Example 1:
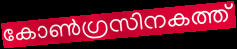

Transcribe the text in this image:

കോൺഗ്രസിനകത്ത്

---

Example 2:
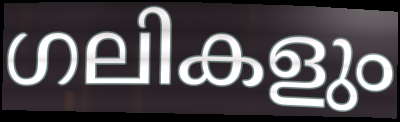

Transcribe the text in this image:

ഗലികളും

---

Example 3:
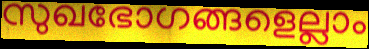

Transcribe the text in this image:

സുഖഭോഗങ്ങളെല്ലാം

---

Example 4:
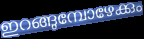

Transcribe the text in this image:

ഇറങ്ങുമ്പോഴേക്കും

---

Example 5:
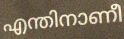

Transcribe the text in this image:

എന്തിനാണീ